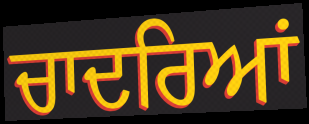
ਚਾਦਰਿਆਂ